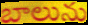
బాలును